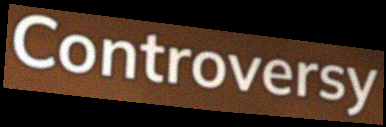
Controversy